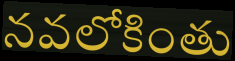
నవలోకింతు